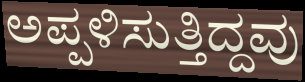
ಅಪ್ಪಳಿಸುತ್ತಿದ್ದವು